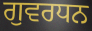
ਗੁਵਰਧਨ